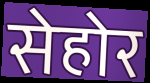
सेहोर